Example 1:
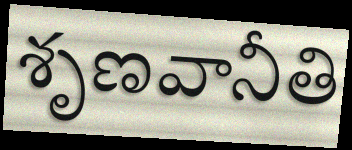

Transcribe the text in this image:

శృణవానీతి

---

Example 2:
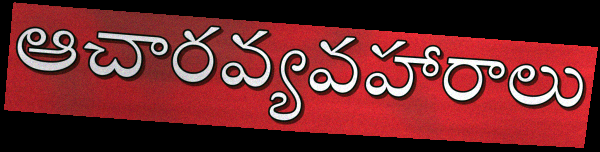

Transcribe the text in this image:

ఆచారవ్యవహారాలు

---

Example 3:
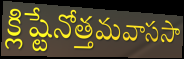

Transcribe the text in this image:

క్లిష్టేనోత్తమవాససా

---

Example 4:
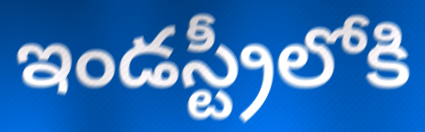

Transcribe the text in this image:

ఇండస్ట్రీలోకి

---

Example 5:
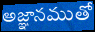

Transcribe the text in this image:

అజ్ఞానముతో